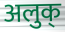
अलुक्